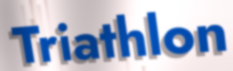
Triathlon